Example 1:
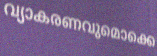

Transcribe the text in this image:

വ്യാകരണവുമൊക്കെ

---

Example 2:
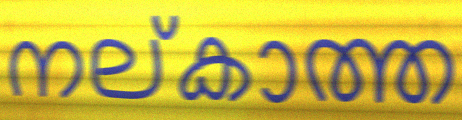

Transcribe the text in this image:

നല്കാത്ത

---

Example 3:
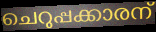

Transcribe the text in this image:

ചെറുപ്പക്കാരന്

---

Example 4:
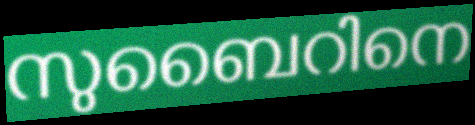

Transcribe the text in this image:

സുബൈറിനെ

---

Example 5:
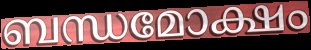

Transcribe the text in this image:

ബന്ധമോക്ഷം